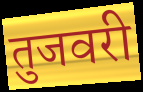
तुजवरी